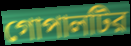
গোপালটির